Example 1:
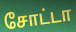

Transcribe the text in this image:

சோட்டா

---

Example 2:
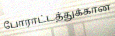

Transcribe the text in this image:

போராட்டத்துக்கான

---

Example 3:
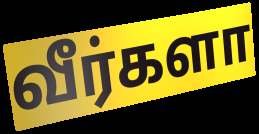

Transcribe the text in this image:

வீர்களா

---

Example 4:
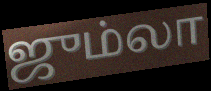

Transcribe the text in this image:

ஜும்லா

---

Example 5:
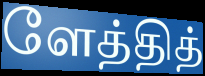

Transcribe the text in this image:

ளேத்தித்